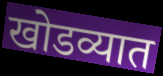
खोडव्यात